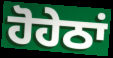
ਹੋਹੇਠਾਂ